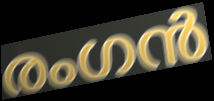
രംഗൻ